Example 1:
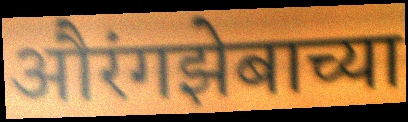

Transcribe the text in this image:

औरंगझेबाच्या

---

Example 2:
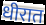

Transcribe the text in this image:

धीरात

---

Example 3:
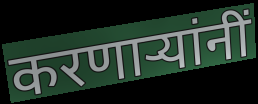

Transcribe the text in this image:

करणार्‍यांनीं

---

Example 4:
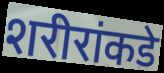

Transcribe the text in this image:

शरीरांकडे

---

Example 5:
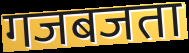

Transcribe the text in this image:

गजबजता